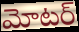
మోటర్